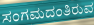
ಸಂಗಮದಂತಿರುವ